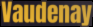
Vaudenay